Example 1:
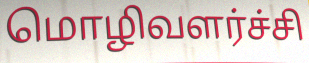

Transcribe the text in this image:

மொழிவளர்ச்சி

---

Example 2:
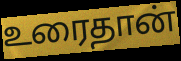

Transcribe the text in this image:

உரைதான்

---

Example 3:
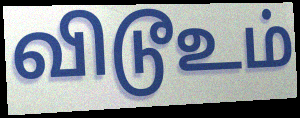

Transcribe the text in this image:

விடூஉம்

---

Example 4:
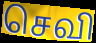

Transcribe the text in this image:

செவி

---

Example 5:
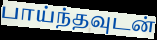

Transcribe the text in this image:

பாய்ந்தவுடன்